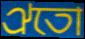
ঐতো